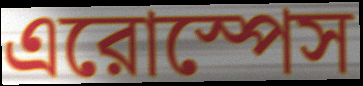
এরোস্পেস